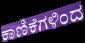
ಕಾಣಿಕೆಗಳಿಂದ